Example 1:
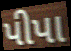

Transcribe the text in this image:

પીપા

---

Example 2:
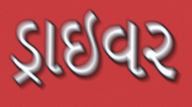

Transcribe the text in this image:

ડ્રાઇવર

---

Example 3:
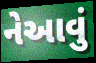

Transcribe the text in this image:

નેઆવું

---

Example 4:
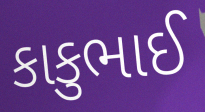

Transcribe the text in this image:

કાકુભાઈ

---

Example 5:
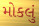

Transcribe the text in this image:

મોકલું